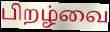
பிறழ்வை